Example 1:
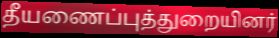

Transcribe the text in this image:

தீயணைப்புத்துறையினர்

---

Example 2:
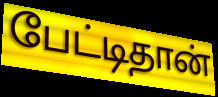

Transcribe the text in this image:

பேட்டிதான்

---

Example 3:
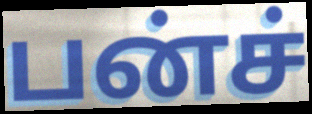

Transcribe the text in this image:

பன்ச்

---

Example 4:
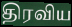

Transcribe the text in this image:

திரவிய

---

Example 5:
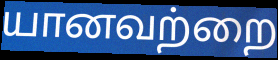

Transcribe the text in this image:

யானவற்றை